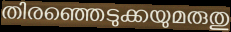
തിരഞ്ഞെടുക്കയുമരുതു